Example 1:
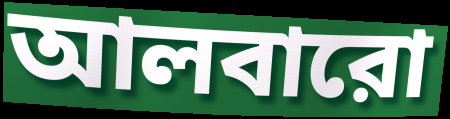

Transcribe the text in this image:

আলবারো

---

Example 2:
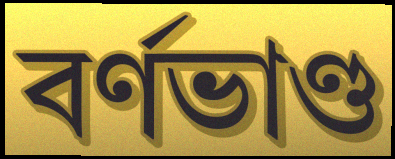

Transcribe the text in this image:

বর্ণভাণ্ড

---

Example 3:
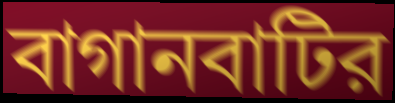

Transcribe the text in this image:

বাগানবাটির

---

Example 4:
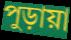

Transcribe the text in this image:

পুড়ায়া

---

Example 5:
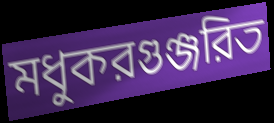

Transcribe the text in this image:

মধুকরগুঞ্জরিত